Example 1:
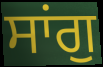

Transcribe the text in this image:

ਸਾਂਗੁ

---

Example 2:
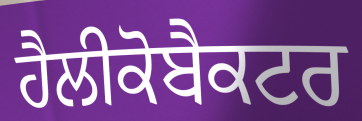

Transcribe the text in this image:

ਹੈਲੀਕੋਬੈਕਟਰ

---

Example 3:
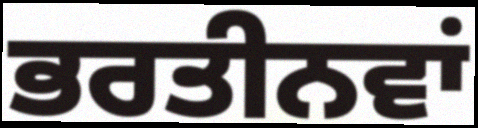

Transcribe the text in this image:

ਭਰਤੀਨਵਾਂ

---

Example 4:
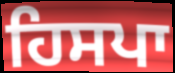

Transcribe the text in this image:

ਹਿਸਪਾ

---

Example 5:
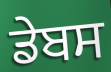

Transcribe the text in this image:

ਡੇਬਸ